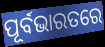
ପୂର୍ବଭାରତରେ